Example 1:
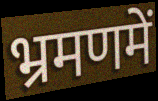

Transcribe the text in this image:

भ्रमणमें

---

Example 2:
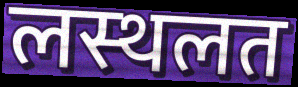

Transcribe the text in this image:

लस्थलत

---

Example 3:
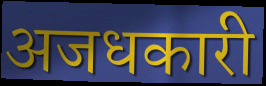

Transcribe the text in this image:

अजधकारी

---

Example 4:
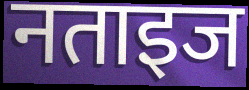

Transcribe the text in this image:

नताइज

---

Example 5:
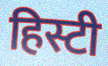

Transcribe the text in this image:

हिस्टी